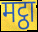
मट्ठा